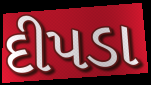
દીપડા